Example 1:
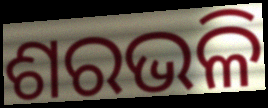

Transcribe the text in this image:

ଶରଭଳି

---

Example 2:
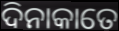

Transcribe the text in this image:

ଦିନାକାତେ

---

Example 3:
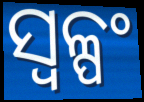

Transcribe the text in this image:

ସ୍ୱଳ୍ପଂ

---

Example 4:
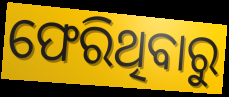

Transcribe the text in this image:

ଫେରିଥିବାରୁ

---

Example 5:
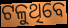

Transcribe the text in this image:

ଟଳୁଥିବେ